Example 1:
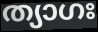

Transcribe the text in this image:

ത്യാഗഃ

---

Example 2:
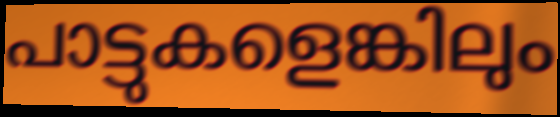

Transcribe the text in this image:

പാട്ടുകളെങ്കിലും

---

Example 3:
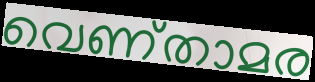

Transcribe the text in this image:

വെണ്താമര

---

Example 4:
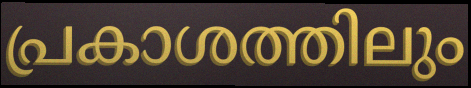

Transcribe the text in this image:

പ്രകാശത്തിലും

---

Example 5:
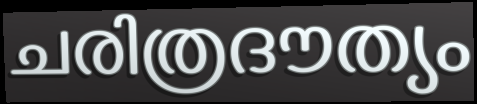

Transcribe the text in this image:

ചരിത്രദൗത്യം